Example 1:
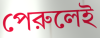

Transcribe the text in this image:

পেরুলেই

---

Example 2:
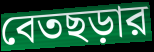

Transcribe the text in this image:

বেতছড়ার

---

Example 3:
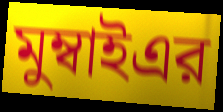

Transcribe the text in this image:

মুম্বাইএর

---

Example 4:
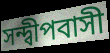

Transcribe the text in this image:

সন্দ্বীপবাসী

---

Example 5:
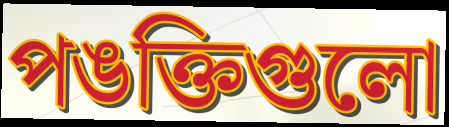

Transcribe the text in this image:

পঙক্তিগুলো